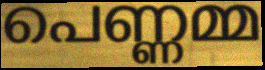
പെണ്ണമ്മ